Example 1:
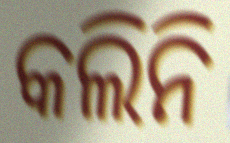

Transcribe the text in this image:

କଲିନି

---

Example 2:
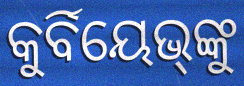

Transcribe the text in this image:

କୁର୍ବିୟେଭ୍‌ଙ୍କୁ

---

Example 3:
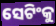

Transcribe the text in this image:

ସେଟିଂକୁ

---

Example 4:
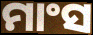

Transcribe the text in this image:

ମାଂସ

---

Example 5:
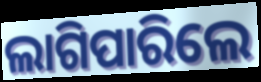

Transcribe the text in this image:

ଲାଗିପାରିଲେ